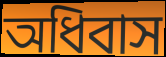
অধিবাস